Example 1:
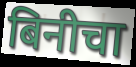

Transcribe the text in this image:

बिनीचा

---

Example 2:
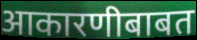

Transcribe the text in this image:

आकारणीबाबत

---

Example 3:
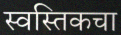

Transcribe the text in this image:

स्वस्तिकचा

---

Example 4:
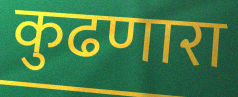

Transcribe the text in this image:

कुढणारा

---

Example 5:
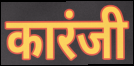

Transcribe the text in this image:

कारंजी